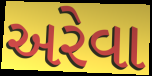
અરેવા